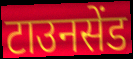
टाउनसेंड